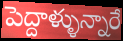
పెద్దాళ్ళున్నారే